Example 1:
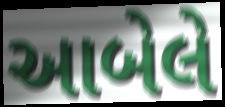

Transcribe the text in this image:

આબેલે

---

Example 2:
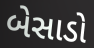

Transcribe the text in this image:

બેસાડો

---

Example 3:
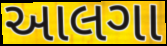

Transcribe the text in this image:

આલગા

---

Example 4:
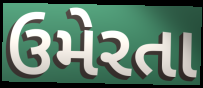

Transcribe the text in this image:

ઉમેરતા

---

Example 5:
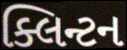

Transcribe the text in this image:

ક્લિન્ટન